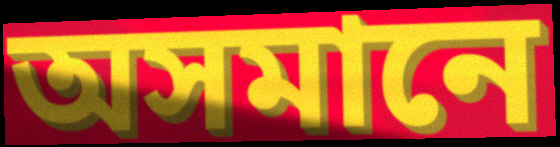
অসমানে